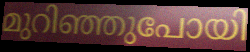
മുറിഞ്ഞുപോയി